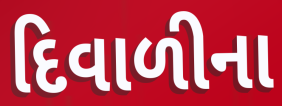
દિવાળીના